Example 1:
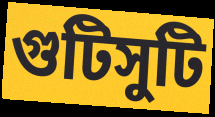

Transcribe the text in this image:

গুটিসুটি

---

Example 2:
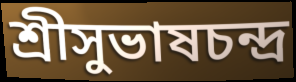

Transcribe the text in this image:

শ্রীসুভাষচন্দ্র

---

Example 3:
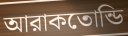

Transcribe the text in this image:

আরাকতোন্ডি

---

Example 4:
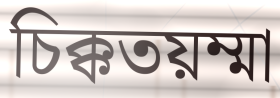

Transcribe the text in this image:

চিক্কতয়ম্মা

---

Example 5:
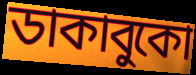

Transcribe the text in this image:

ডাকাবুকো